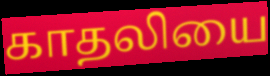
காதலியை